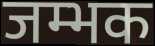
जम्भक